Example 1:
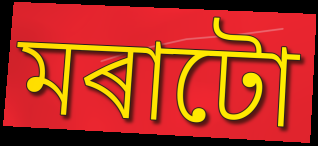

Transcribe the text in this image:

মৰাটো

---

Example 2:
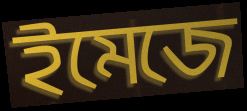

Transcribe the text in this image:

ইমেজে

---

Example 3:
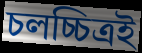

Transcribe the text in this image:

চলচ্চিত্ৰই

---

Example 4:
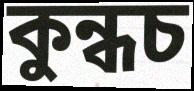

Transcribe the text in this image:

কুন্ধচ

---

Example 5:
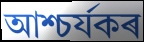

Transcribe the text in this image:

আশ্চৰ্যকৰ